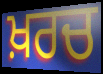
ਖ਼ਰਚ